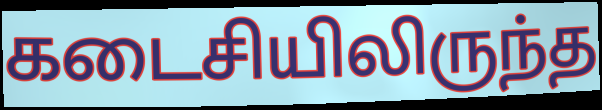
கடைசியிலிருந்த